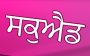
ਸਕੁਐਡ